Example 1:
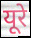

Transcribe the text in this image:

यूरे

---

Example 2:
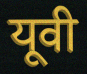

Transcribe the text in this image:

यूवी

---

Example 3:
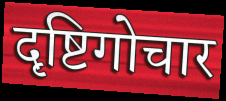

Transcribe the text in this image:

दृष्टिगोचार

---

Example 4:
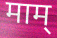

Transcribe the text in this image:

माम्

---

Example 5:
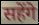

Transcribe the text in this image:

सहेंगे